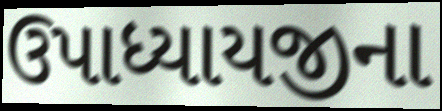
ઉપાધ્યાયજીના